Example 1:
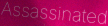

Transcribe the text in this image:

Assassinated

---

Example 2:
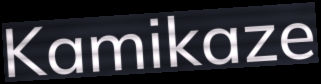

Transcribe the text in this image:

Kamikaze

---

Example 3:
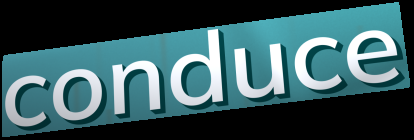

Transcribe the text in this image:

conduce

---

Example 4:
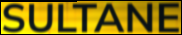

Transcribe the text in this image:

SULTANE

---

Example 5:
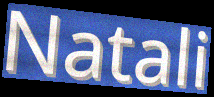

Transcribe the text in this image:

Natali